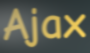
Ajax